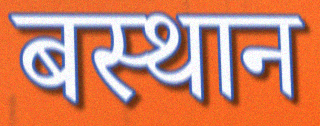
बस्थान